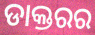
ଡାକ୍ତରର